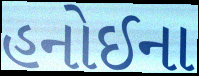
હનોઈના